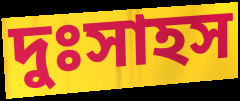
দুঃসাহস